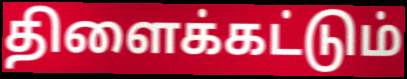
திளைக்கட்டும்